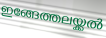
ഇങ്ങേത്തലയ്ക്കൽ